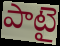
పాటై